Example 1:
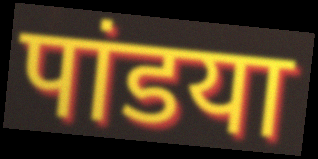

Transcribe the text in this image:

पांडया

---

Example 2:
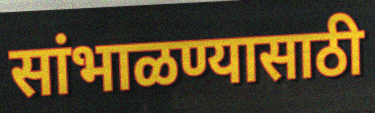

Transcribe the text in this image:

सांभाळण्यासाठी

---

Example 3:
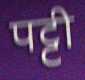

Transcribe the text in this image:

पट्टी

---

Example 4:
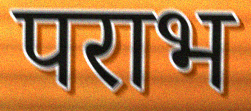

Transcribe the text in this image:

पराभ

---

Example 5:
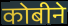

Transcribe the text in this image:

कोबीने